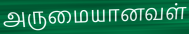
அருமையானவள்